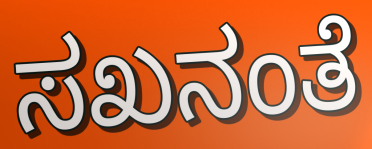
ಸಖನಂತೆ